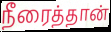
நீரைத்தான்